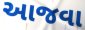
આજવા